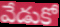
వేడుకో